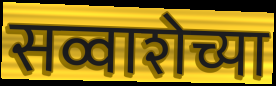
सव्वाशेच्या